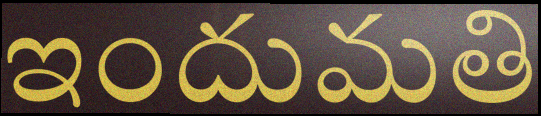
ఇందుమతి